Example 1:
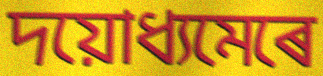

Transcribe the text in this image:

দয়োধ্যমেৰে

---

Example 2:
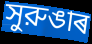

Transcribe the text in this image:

সুৰুঙাৰ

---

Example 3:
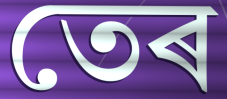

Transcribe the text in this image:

তেৰ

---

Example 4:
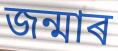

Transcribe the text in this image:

জন্মাৰ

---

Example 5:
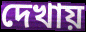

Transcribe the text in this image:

দেখায়